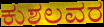
ಕುಶಲವರ